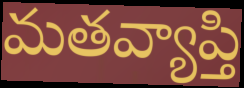
మతవ్యాప్తి